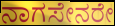
ನಾಗಸೇನರೇ